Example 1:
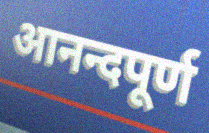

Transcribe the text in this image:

आनन्दपूर्ण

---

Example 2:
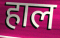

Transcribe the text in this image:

हाल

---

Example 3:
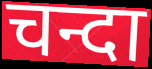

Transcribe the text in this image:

चन्दा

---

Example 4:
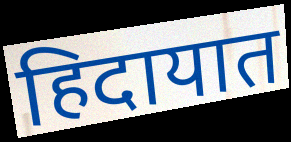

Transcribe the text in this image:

हिदायात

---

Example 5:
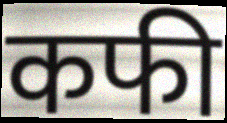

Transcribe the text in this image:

कफी